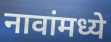
नावांमध्ये